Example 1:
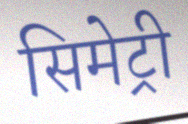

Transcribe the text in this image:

सिमेट्री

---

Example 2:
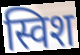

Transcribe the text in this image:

स्विश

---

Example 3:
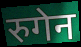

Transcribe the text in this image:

रुगेन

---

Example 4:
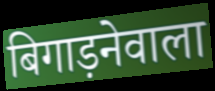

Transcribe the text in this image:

बिगाड़नेवाला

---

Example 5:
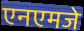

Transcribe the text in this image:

एनएमजे